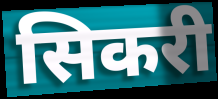
सिकरी